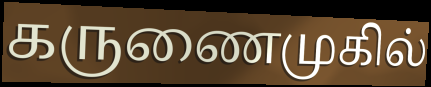
கருணைமுகில்